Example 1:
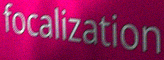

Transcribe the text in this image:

focalization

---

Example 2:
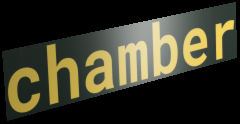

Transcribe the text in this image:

chamber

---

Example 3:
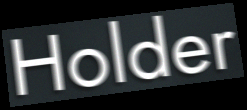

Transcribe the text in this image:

Holder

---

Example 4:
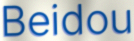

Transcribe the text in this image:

Beidou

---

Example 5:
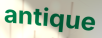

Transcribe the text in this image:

antique